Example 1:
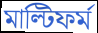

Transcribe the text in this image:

মাল্টিফর্ম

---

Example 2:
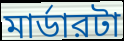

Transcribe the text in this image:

মার্ডারটা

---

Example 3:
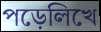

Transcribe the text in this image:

পড়েলিখে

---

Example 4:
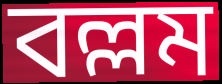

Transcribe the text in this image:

বল্লম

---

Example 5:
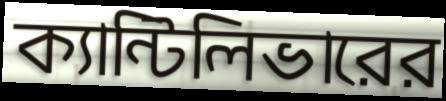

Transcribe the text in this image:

ক্যান্টিলিভারের